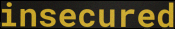
insecured